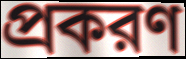
প্রকরণ